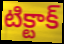
టిక్టాక్